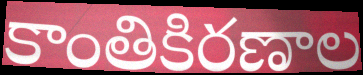
కాంతికిరణాల